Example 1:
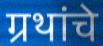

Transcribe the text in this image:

ग्रथांचे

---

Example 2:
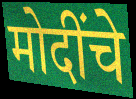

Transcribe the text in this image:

मोदींचे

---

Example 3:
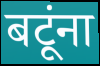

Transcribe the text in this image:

बटूंना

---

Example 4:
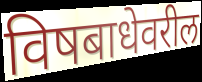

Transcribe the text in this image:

विषबाधेवरील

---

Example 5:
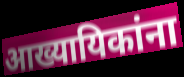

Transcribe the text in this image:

आख्यायिकांना